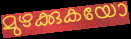
മുഴക്കുകയോ